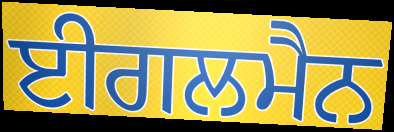
ਈਗਲਮੈਨ